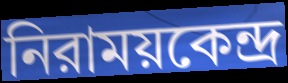
নিরাময়কেন্দ্র